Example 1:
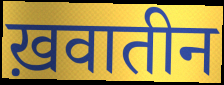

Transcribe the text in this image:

ख़वातीन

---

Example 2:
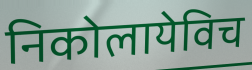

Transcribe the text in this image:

निकोलायेविच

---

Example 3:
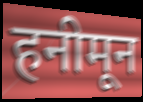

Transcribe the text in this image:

हनीमून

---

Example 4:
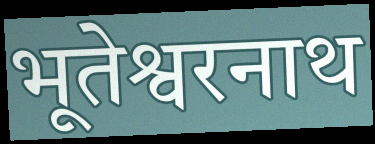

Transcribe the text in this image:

भूतेश्वरनाथ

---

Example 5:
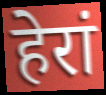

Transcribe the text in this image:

हेरां